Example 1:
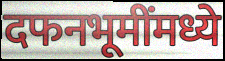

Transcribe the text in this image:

दफनभूमींमध्ये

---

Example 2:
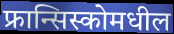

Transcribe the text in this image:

फ्रान्सिस्कोमधील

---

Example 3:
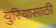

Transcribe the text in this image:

युरियासाठी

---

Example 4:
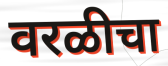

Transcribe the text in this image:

वरळीचा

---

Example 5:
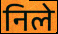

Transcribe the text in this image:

निले